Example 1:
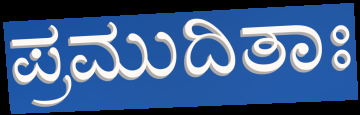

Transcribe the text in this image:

ಪ್ರಮುದಿತಾಃ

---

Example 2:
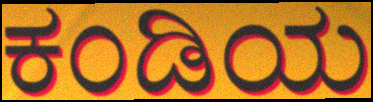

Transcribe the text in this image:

ಕಂಡಿಯ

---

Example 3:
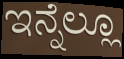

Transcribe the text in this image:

ಇನ್ನೆಲ್ಲೂ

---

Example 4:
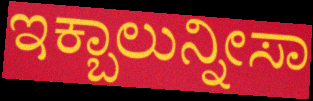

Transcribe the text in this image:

ಇಕ್ಬಾಲುನ್ನೀಸಾ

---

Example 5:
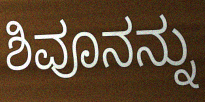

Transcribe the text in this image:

ಶಿವೂನನ್ನು